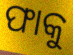
ଫାକୁ